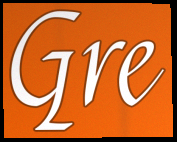
Gre